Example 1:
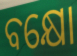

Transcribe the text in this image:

ବକ୍ଷୋ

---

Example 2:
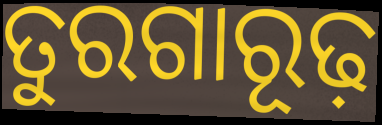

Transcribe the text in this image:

ତୁରଗାରୂଢ଼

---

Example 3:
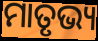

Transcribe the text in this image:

ମାତୃଭ୍ୟ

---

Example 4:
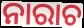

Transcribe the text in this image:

ନାରାଚ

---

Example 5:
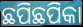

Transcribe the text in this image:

ଛପିଛପିକା